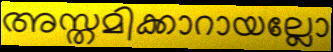
അസ്തമിക്കാറായല്ലോ